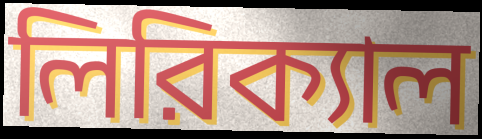
লিরিক্যাল